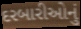
દરબારીઓનું